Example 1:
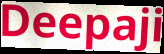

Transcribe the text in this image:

Deepaji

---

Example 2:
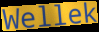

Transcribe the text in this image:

Wellek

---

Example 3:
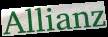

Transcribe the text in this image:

Allianz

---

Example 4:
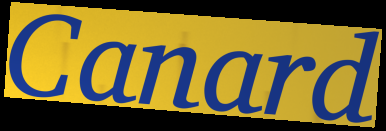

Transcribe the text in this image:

Canard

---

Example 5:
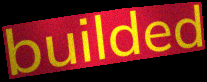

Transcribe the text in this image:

builded